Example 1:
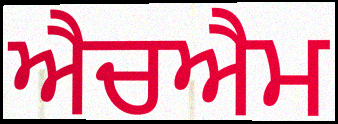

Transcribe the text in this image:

ਐਚਐਮ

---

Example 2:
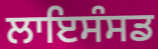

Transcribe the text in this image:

ਲਾਇਸੰਸਡ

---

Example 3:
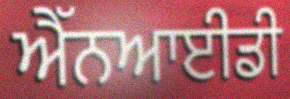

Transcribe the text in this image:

ਐੱਨਆਈਡੀ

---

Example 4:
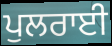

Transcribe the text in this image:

ਪੁਲਰਾਈ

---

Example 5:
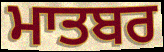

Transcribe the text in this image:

ਮਾਤਬਰ